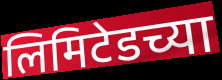
लिमिटेडच्या